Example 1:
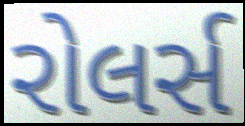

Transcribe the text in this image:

રોલર્સ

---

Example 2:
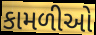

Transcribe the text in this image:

કામળીઓ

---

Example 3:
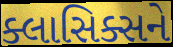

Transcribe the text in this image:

ક્લાસિક્સને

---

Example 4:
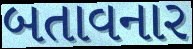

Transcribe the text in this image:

બતાવનાર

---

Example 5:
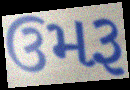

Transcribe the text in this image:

ઉમરૂ